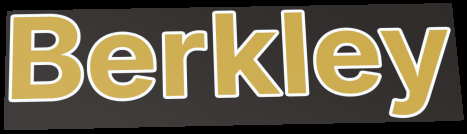
Berkley